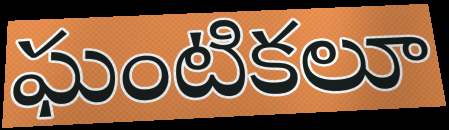
ఘంటికలూ